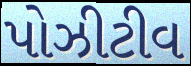
પોઝીટીવ